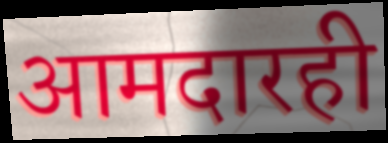
आमदारही